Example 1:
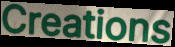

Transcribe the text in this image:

Creations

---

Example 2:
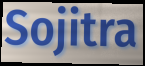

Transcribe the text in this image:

Sojitra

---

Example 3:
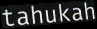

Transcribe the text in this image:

tahukah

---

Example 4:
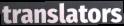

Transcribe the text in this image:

translators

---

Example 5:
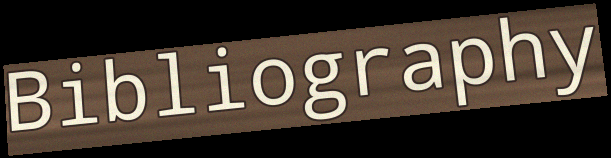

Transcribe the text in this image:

Bibliography